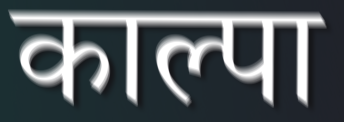
काल्पा